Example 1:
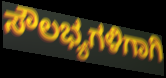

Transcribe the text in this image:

ಸೌಲಭ್ಯಗಳಿಗಾಗಿ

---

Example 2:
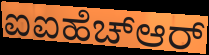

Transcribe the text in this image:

ಐಐಹೆಚ್ಆರ್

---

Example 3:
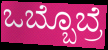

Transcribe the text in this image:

ಒಬ್ಬೊಬ್ರೆ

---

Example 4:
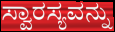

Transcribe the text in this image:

ಸ್ವಾರಸ್ಯವನ್ನು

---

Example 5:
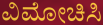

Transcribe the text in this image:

ವಿಮೋಚಿಸಿ